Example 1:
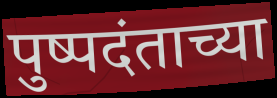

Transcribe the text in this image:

पुष्पदंताच्या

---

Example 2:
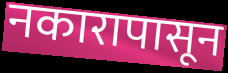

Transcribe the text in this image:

नकारापासून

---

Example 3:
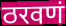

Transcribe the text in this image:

ठरवणं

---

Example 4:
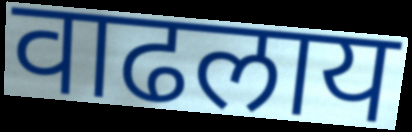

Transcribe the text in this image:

वाढलाय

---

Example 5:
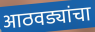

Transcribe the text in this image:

आठवड्यांचा